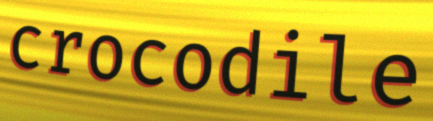
crocodile